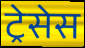
ट्रेसेस